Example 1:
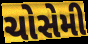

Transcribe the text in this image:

ચોસેમી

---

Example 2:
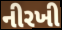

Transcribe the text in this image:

નીરખી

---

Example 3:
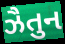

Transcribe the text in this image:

ઝૈતુન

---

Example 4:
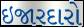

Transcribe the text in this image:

ઇજારદારો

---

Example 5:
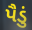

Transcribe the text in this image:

પૈડું